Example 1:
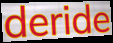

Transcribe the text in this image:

deride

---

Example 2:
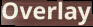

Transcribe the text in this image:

Overlay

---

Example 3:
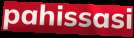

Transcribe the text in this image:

pahissasi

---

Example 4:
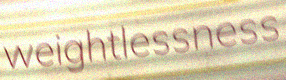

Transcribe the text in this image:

weightlessness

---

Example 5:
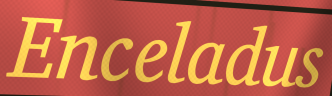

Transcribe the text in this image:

Enceladus